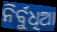
ନିର୍ବୁଧିଆ